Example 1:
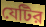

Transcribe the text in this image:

যেটির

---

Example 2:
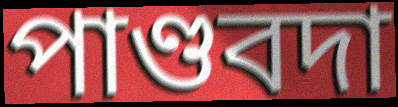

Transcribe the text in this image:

পাণ্ডবদা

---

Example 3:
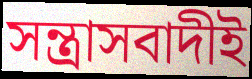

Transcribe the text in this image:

সন্ত্রাসবাদীই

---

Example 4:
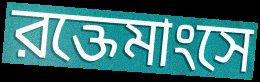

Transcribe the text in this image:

রক্তেমাংসে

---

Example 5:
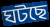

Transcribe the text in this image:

ঘটছে